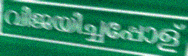
വിജയിച്ചപ്പോള്